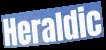
Heraldic